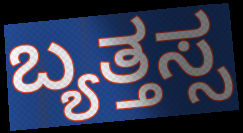
ಬ್ಯತ್ತಸ್ಸ